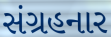
સંગ્રહનાર